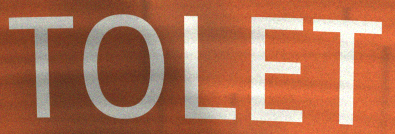
TOLET